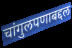
चांगुलपणाबद्दल